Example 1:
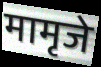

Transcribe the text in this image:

मामृजे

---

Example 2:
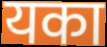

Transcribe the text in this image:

यका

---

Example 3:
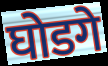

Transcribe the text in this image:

घोडगे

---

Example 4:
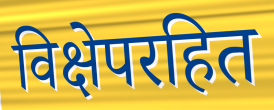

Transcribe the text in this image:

विक्षेपरहित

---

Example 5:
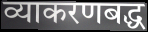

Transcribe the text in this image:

व्याकरणबद्ध